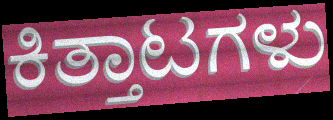
ಕಿತ್ತಾಟಗಳು